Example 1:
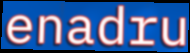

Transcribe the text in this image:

enadru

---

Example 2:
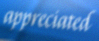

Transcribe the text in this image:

appreciated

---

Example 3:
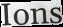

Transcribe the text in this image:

Ions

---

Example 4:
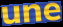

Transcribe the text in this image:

une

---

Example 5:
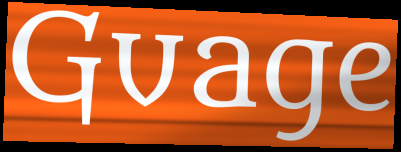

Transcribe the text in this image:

Guage